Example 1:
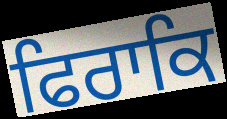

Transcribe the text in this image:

ਫਿਰਾਕਿ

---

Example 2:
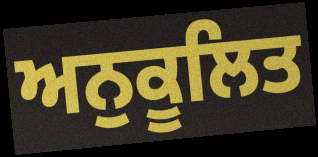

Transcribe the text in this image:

ਅਨੁਕੂਲਿਤ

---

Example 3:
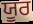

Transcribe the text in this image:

ਯੂਰ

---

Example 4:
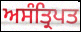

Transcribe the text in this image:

ਅਸੰਤ੍ਰਿਪਤ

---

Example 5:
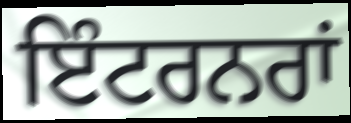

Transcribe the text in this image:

ਇੰਟਰਨਰਾਂ